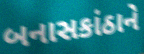
બનાસકાંઠાને